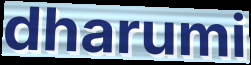
dharumi